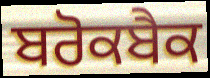
ਬਰੋਕਬੈਕ